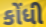
કોંધી